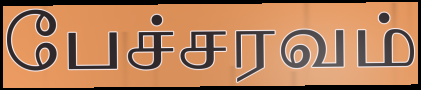
பேச்சரவம்